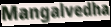
Mangalvedha